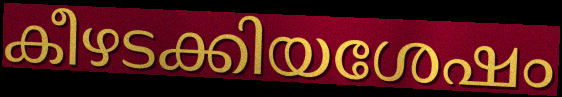
കീഴടക്കിയശേഷം